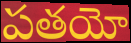
పతయో